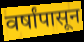
वर्षांपासून